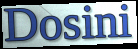
Dosini